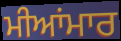
ਮੀਆਂਮਾਰ